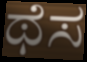
ಥೆಸ